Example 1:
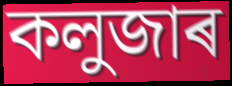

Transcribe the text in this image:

কলুজাৰ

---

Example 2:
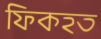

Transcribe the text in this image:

ফিকহত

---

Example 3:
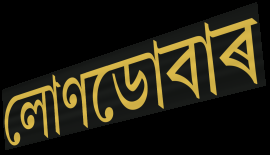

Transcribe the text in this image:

লোণডোবাৰ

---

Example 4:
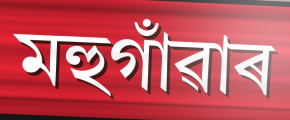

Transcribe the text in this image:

মহুগাঁৱাৰ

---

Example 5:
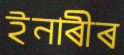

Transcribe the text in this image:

ইনাৰীৰ